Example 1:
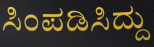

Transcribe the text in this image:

ಸಿಂಪಡಿಸಿದ್ದು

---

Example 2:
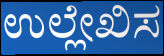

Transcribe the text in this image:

ಉಲ್ಲೇಖಿಸ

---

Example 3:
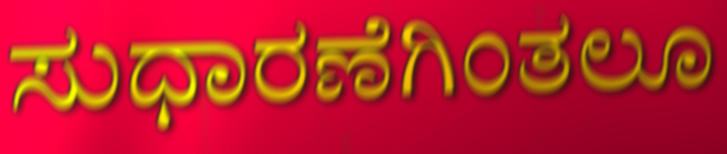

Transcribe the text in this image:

ಸುಧಾರಣೆಗಿಂತಲೂ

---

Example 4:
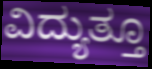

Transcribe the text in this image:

ವಿದ್ಯುತ್ತೂ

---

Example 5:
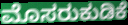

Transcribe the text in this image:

ಮೊಸರುಕುಡಿಕೆ